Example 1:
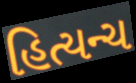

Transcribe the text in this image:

હિત્યન્ચ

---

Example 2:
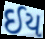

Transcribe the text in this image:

ઈય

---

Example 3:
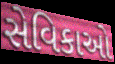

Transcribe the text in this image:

સેવિકાઓ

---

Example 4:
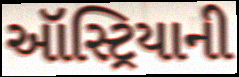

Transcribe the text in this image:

ઑસ્ટ્રિયાની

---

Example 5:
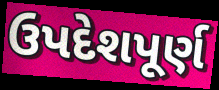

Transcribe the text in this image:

ઉપદેશપૂર્ણ